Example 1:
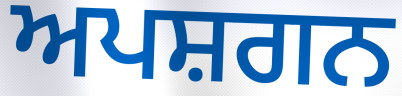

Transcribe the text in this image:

ਅਪਸ਼ਗਨ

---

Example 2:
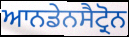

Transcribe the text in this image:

ਆਨਡੇਨਸੈਟ੍ਰੋਨ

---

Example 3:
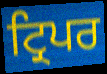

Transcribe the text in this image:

ਟ੍ਰਿਪਰ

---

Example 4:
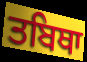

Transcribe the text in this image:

ਤਬਿਥਾ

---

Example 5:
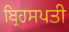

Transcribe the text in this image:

ਬ੍ਰਿਹਸਪਤੀ